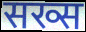
सख्स